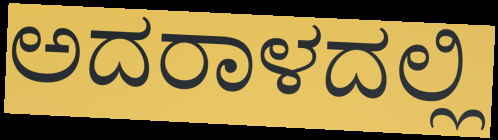
ಅದರಾಳದಲ್ಲಿ